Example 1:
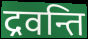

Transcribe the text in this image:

द्रवन्ति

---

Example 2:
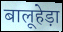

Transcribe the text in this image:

बालूहेड़ा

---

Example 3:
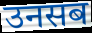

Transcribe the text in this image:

उनसब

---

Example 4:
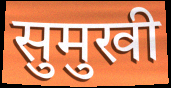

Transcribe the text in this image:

सुमुखी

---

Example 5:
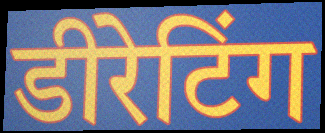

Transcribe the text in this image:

डीरेटिंग